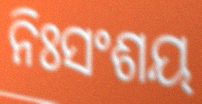
ନିଃସଂଶୟ